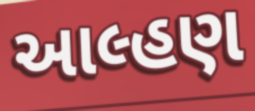
આલ્હણ